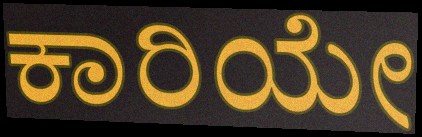
ಕಾರಿಯೇ